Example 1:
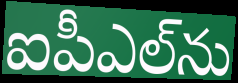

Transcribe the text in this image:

ఐపీఎల్‌ను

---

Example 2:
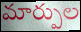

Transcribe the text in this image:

మార్పుల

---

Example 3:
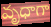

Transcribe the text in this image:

వృధాగా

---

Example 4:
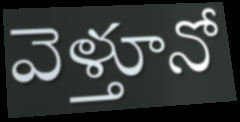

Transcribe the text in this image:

వెళ్తూనో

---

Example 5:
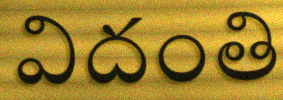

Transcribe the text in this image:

విదంతి